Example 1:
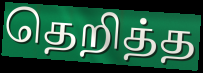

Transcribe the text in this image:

தெறித்த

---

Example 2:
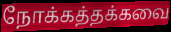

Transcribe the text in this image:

நோக்கத்தக்கவை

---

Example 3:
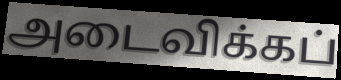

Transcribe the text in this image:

அடைவிக்கப்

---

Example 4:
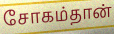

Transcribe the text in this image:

சோகம்தான்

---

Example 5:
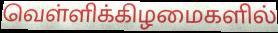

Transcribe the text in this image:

வெள்ளிக்கிழமைகளில்